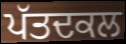
ਪੱਤਦਕਲ